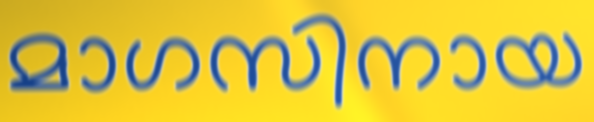
മാഗസിനായ